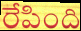
రేపింది